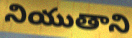
నియుతాని